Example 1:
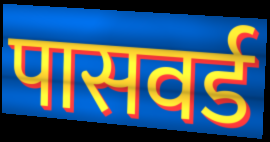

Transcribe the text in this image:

पासवर्ड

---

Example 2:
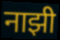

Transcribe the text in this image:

नाझी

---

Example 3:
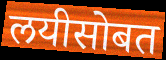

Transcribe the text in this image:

लयीसोबत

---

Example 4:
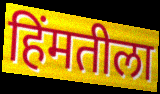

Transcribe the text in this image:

हिंमतीला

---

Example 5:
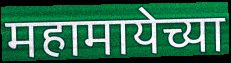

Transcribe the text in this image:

महामायेच्या